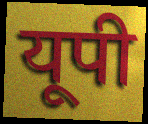
यूपी